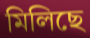
মিলিছে